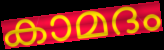
കാമദം